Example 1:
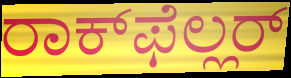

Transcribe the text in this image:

ರಾಕ್‌ಫೆಲ್ಲರ್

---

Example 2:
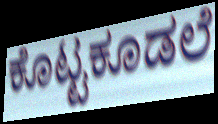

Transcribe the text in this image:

ಕೊಟ್ಟಕೂಡಲೆ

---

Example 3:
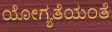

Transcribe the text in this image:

ಯೋಗ್ಯತೆಯಂತೆ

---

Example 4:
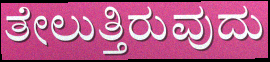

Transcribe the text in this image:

ತೇಲುತ್ತಿರುವುದು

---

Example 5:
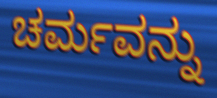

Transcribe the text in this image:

ಚರ್ಮವನ್ನು